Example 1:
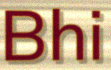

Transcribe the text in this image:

Bhi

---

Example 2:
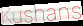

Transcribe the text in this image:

Kushans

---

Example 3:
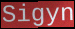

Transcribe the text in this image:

Sigyn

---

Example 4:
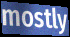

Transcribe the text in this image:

mostly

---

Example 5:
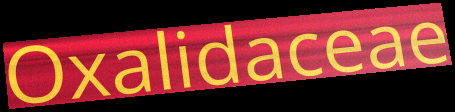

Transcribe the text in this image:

Oxalidaceae